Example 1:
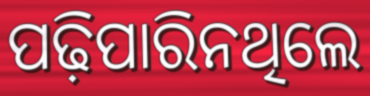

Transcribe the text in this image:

ପଢ଼ିପାରିନଥିଲେ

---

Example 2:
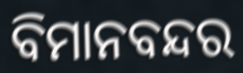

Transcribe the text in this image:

ବିମାନବନ୍ଦର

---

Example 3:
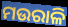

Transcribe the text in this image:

ମଉରାଳି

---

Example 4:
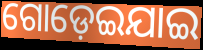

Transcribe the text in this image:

ଗୋଡ଼େଇଯାଇ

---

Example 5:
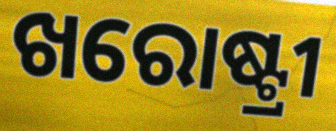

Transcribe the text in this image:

ଖରୋଷ୍ଟ୍ରୀ